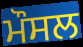
ਮੌਸਲ